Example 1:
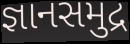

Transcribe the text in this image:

જ્ઞાનસમુદ્ર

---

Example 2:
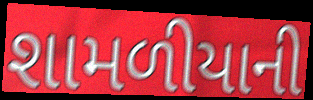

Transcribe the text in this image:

શામળીયાની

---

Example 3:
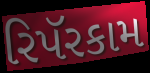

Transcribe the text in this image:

રિપૅરકામ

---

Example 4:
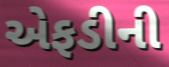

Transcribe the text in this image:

એફડીની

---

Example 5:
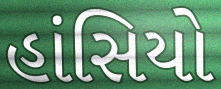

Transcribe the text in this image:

હાંસિયો